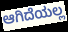
ಆಗಿದೆಯಲ್ಲ